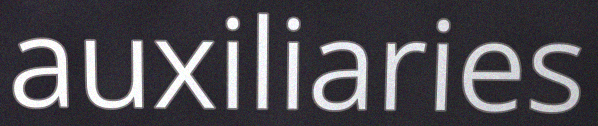
auxiliaries